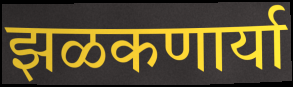
झळकणार्या